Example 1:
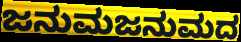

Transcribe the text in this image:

ಜನುಮಜನುಮದ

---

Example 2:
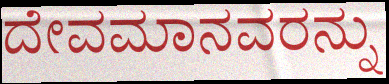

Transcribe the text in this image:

ದೇವಮಾನವರನ್ನು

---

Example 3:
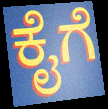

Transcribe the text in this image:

ಕೈಗೆ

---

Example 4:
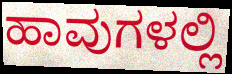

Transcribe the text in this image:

ಹಾವುಗಳಲ್ಲಿ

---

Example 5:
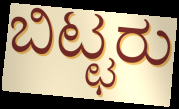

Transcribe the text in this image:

ಬಿಟ್ಟರು